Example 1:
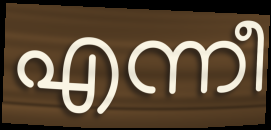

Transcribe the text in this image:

എന്നീ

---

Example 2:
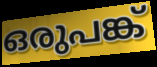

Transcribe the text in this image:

ഒരുപങ്ക്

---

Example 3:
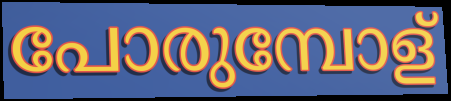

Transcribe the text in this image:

പോരുമ്പോള്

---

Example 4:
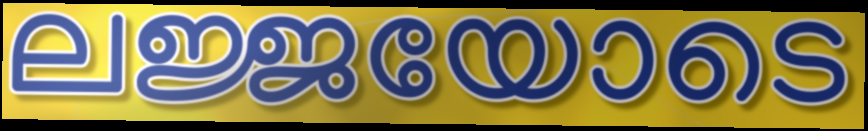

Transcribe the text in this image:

ലജ്ജയോടെ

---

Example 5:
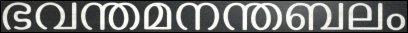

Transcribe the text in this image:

ഭവന്തമനന്തബലം